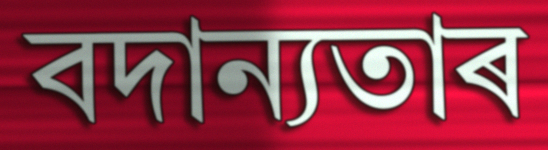
বদান্যতাৰ